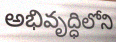
అభివృద్ధిలోని